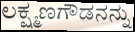
ಲಕ್ಷ್ಮಣಗೌಡನನ್ನು